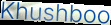
Khushboo